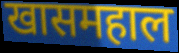
खासमहाल